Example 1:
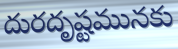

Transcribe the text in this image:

దురదృష్టమునకు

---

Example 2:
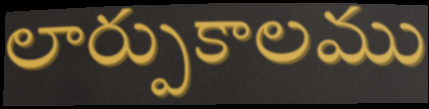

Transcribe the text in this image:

లార్పుకాలము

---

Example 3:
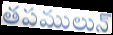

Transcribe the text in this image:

తపములున్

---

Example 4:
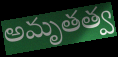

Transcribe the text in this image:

అమృతత్వ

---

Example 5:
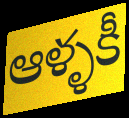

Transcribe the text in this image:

ఆళ్ళకీ